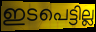
ഇടപെട്ടില്ല